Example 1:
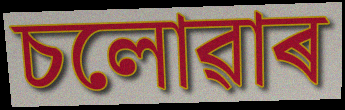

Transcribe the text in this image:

চলোৱাৰ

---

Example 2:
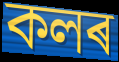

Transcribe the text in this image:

কলৰ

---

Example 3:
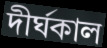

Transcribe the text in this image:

দীৰ্ঘকাল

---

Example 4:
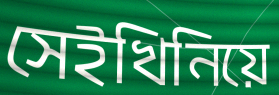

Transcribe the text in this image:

সেইখিনিয়ে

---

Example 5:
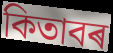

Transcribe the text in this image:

কিতাবৰ